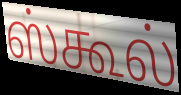
ஸ்கூல்